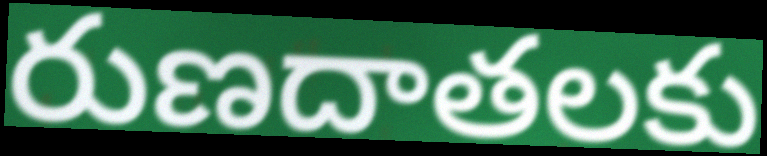
రుణదాతలకు